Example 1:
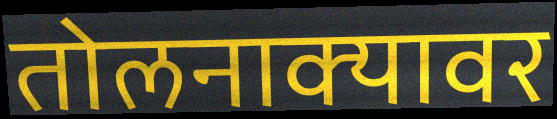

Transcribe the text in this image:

तोलनाक्यावर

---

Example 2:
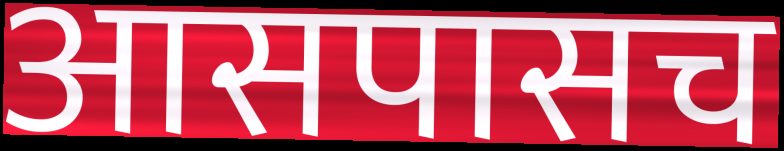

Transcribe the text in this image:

आसपासच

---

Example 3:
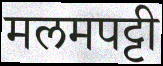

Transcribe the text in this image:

मलमपट्टी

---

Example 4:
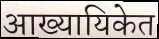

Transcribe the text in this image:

आख्यायिकेत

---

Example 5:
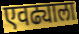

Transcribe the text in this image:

एवढ्याला